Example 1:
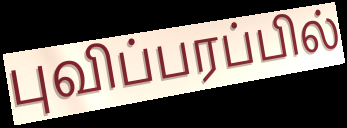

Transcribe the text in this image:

புவிப்பரப்பில்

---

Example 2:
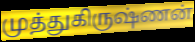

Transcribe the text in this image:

முத்துகிருஷ்ணன்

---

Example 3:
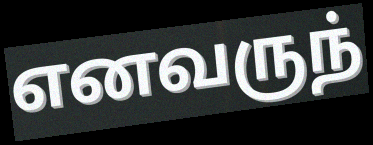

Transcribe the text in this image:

எனவருந்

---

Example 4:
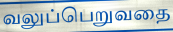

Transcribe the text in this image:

வலுப்பெறுவதை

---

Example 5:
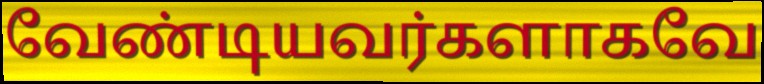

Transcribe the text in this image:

வேண்டியவர்களாகவே